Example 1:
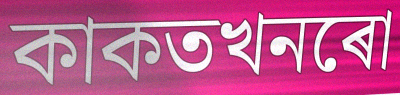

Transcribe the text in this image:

কাকতখনৰো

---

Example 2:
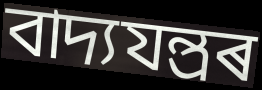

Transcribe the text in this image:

বাদ্যযন্ত্ৰৰ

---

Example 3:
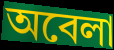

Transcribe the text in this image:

অবেলা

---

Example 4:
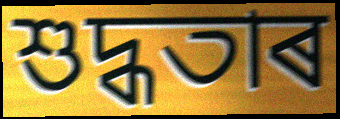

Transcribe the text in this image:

শুদ্ধতাৰ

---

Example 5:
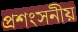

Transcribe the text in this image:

প্ৰশংসনীয়